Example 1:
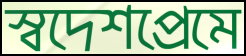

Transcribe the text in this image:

স্বদেশপ্রেমে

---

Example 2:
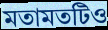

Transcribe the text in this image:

মতামতটিও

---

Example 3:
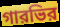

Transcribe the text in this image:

গারভির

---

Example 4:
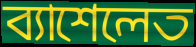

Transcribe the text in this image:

ব্যাশেলেত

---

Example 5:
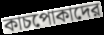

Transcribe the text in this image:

কাচপোকাদের